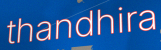
thandhira